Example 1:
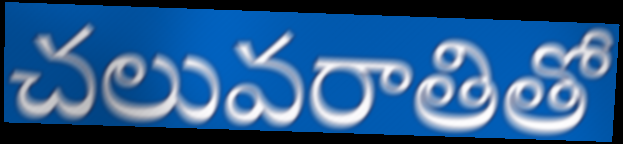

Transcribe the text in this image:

చలువరాతితో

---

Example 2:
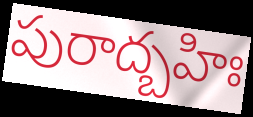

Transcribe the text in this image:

పురాద్బహిః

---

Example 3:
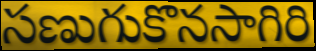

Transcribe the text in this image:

సణుగుకొనసాగిరి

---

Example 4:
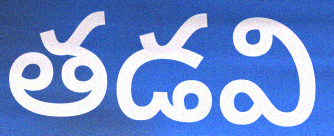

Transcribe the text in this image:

తడవి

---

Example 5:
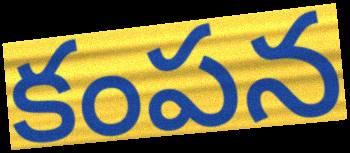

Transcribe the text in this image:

కంపన